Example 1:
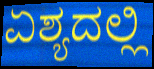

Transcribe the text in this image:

ಏಶ್ಯದಲ್ಲಿ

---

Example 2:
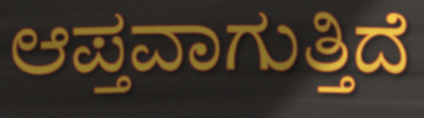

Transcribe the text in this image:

ಆಪ್ತವಾಗುತ್ತಿದೆ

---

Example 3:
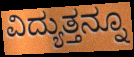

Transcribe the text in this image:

ವಿದ್ಯುತ್ತನ್ನೂ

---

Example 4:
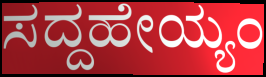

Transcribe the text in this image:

ಸದ್ದಹೇಯ್ಯಂ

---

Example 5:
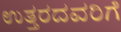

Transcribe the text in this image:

ಉತ್ತರದವರಿಗೆ